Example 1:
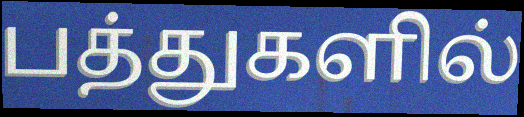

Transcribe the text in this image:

பத்துகளில்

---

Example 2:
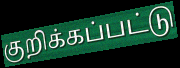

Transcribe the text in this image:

குறிக்கப்பட்டு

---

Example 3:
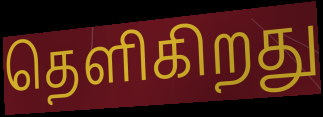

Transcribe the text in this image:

தெளிகிறது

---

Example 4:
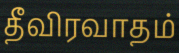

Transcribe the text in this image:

தீவிரவாதம்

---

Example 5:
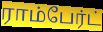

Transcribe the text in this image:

ராம்பேர்ட்